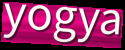
yogya